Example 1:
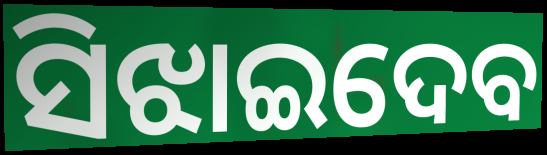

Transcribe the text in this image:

ସିଝାଇଦେବ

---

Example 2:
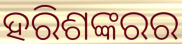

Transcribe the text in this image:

ହରିଶଙ୍କରର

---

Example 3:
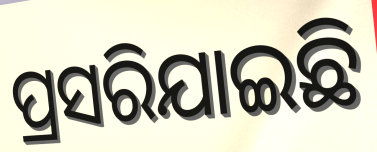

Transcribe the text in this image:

ପ୍ରସରିଯାଇଛି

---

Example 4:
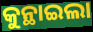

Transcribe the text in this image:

କୁନ୍ଥାଇଲା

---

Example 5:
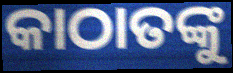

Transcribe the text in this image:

କାଠାତଙ୍କୁ